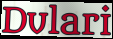
Dulari